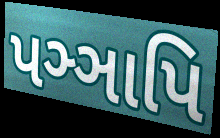
પઞ્ઞાપિ